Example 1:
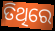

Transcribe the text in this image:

ତିଥିରେ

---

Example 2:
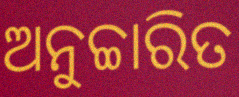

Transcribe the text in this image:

ଅନୁଚ୍ଚାରିତ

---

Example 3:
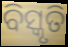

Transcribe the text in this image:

ବିସ୍କୃତି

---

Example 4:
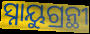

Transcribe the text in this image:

ସ୍ନାୟୁଗ୍ରନ୍ଥୀ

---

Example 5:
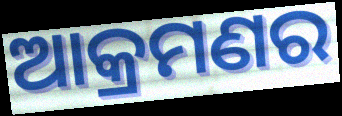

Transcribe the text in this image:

ଆକ୍ରମଣର